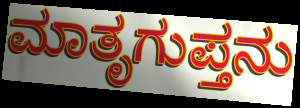
ಮಾತೃಗುಪ್ತನು